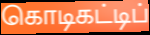
கொடிகட்டிப்